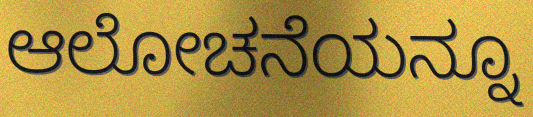
ಆಲೋಚನೆಯನ್ನೂ